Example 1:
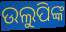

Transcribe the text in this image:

ଉଲୁପିଙ୍କ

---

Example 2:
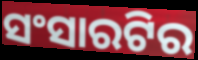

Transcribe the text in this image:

ସଂସାରଟିର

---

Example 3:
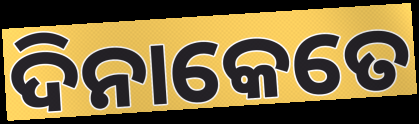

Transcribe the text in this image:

ଦିନାକେତେ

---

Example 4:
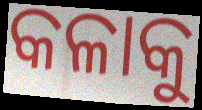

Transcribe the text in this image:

କଳାକୁ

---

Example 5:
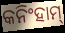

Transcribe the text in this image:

କନିଂହାମ୍